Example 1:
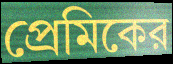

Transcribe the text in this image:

প্রেমিকের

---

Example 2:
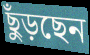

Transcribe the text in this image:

ছুঁড়ছেন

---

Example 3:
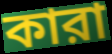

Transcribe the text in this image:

কারা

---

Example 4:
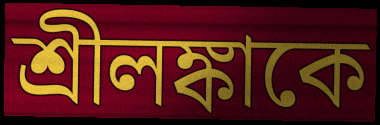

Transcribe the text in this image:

শ্রীলঙ্কাকে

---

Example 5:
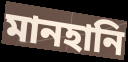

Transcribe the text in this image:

মানহানি